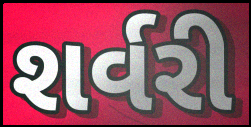
શર્વરી